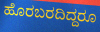
ಹೊರಬರದಿದ್ದರೂ